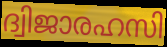
ദ്വിജാരഹസി